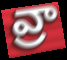
వ్రా